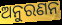
ଅନୁରଣନ